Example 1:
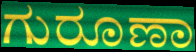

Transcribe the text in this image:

ಗುರೂಣಾ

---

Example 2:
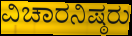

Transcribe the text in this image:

ವಿಚಾರನಿಷ್ಠರು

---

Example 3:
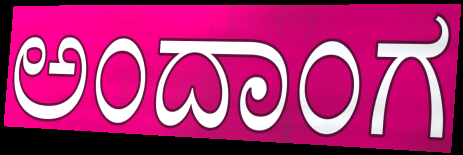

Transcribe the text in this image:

ಅಂದಾಂಗ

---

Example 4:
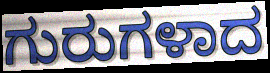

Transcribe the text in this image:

ಗುರುಗಳಾದ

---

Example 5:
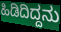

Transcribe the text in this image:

ಹಿಡಿದಿದ್ದನು